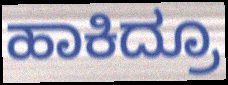
ಹಾಕಿದ್ರೂ